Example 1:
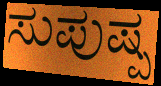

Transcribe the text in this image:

ಸುಪುಷ್ಪ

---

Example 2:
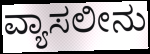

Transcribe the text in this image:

ವ್ಯಾಸಲೀನು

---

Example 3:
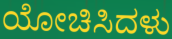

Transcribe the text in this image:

ಯೋಚಿಸಿದಳು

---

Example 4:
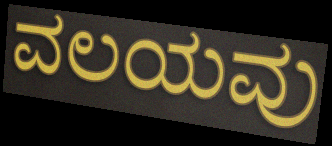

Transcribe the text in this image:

ವಲಯವು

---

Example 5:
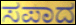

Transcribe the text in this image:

ಸಪಾದ